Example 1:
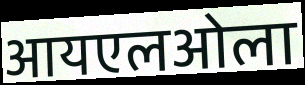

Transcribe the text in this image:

आयएलओला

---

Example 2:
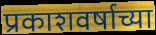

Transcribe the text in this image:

प्रकाशवर्षाच्या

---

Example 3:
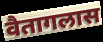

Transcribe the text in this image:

वैतागलास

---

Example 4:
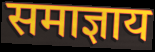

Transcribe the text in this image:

समाज्ञाय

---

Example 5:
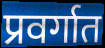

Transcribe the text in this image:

प्रवर्गात